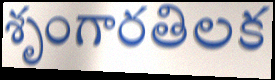
శృంగారతిలక